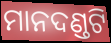
ମାନଦଣ୍ଡଟି